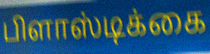
பிளாஸ்டிக்கை